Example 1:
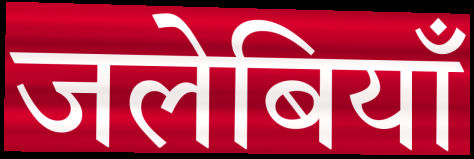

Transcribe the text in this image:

जलेबियाँ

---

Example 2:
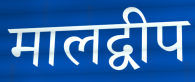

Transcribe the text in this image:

मालद्वीप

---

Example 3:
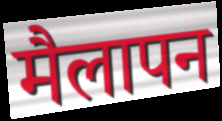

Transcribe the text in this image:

मैलापन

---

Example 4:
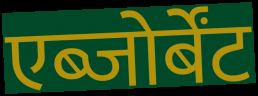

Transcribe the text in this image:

एब्जोर्बेंट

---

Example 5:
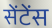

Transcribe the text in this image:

सेंटेंस